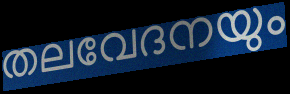
തലവേദനയും